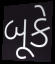
બૂકે